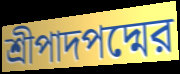
শ্রীপাদপদ্মের